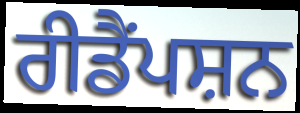
ਰੀਡੈਂਪਸ਼ਨ